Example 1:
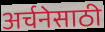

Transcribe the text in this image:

अर्चनेसाठी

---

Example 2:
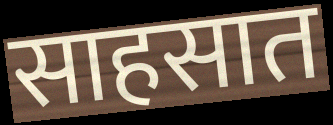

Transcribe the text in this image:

साहसात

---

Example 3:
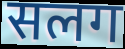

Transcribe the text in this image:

सलग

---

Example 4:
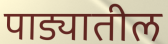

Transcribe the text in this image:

पाड्यातील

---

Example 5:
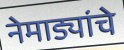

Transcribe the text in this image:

नेमाड्यांचे